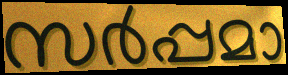
സർപ്പമാ